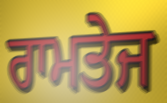
ਰਾਮਤੇਜ